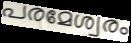
പരമേശ്വരം